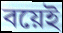
বয়েই